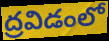
ద్రవిడంలో